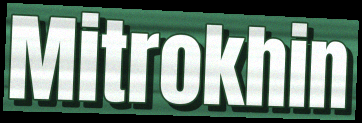
Mitrokhin